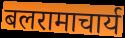
बलरामाचार्य